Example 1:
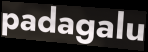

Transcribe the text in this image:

padagalu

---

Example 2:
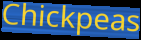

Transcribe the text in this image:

Chickpeas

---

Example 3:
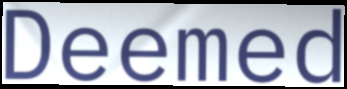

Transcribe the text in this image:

Deemed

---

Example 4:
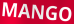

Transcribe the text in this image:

MANGO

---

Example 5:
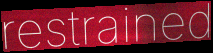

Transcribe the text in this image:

restrained